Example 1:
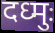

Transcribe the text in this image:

दध्मुः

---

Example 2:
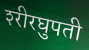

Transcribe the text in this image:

श्रीरघुपती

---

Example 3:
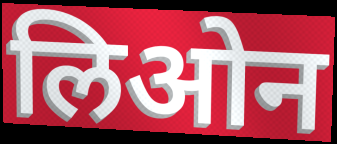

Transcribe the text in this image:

लिओन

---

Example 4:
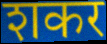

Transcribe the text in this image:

शकर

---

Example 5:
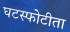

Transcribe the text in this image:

घटस्फोटीता